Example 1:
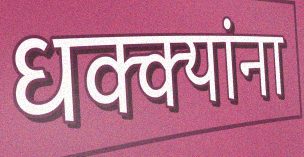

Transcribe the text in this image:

धक्क्यांना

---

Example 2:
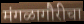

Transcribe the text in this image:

मंगळागौरीचा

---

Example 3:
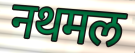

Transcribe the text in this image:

नथमल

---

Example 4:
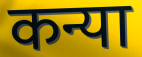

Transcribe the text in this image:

कन्या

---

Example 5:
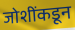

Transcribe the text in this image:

जोशींकडून